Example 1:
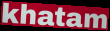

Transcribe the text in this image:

khatam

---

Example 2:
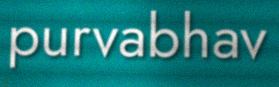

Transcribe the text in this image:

purvabhav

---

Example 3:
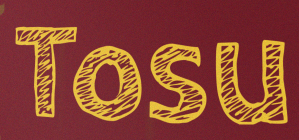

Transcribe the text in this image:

Tosu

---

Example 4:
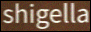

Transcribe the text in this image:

shigella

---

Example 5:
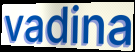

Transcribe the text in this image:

vadina